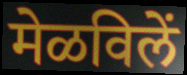
मेळविलें